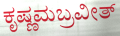
ಕೃಷ್ಣಮಬ್ರವೀತ್